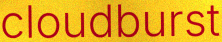
cloudburst